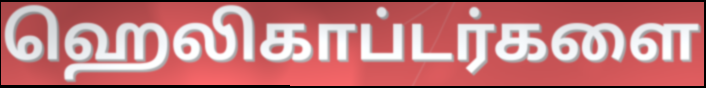
ஹெலிகாப்டர்களை